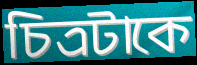
চিত্রটাকে